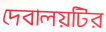
দেবালয়টির